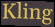
Kling